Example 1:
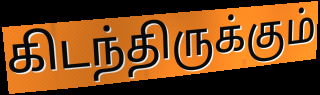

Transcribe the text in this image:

கிடந்திருக்கும்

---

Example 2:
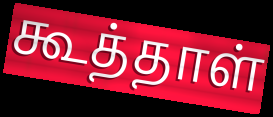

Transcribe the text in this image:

கூத்தாள்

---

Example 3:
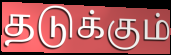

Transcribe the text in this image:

தடுக்கும்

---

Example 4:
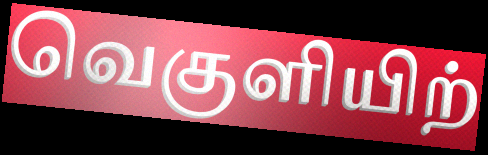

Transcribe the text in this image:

வெகுளியிற்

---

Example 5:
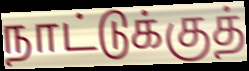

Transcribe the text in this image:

நாட்டுக்குத்